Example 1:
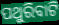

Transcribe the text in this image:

ପଥୁରିବାଟି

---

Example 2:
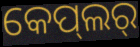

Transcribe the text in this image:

କେପ୍‌ଲର୍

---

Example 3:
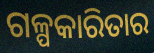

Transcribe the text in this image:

ଗଳ୍ପକାରିତାର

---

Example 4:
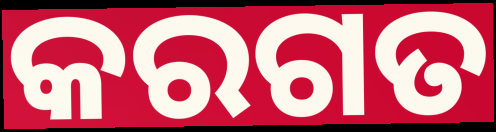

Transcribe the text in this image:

କରଗତ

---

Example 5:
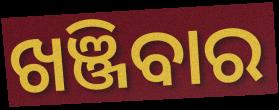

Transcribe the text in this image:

ଖଞ୍ଜିବାର